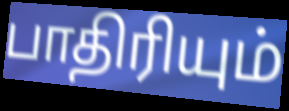
பாதிரியும்